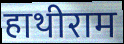
हाथीराम